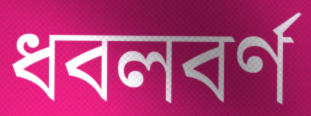
ধবলবর্ণ